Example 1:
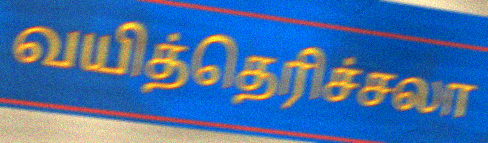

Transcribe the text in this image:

வயித்தெரிச்சலா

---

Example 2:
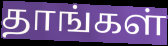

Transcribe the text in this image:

தாங்கள்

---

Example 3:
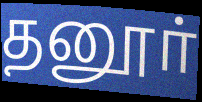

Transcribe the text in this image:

தனூர்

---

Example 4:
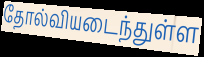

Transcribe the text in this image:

தோல்வியடைந்துள்ள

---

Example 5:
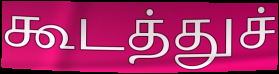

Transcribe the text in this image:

கூடத்துச்